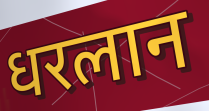
धरलान